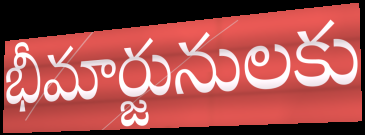
భీమార్జునులకు